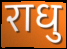
राधु